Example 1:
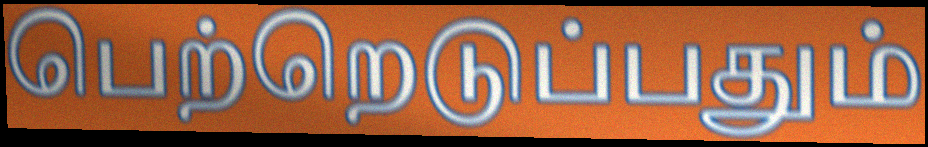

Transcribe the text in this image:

பெற்றெடுப்பதும்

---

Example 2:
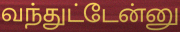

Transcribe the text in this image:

வந்துட்டேன்னு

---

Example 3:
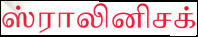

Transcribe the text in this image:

ஸ்ராலினிசக்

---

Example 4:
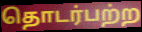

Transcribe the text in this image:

தொடர்பற்ற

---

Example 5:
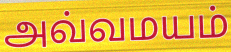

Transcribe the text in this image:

அவ்வமயம்